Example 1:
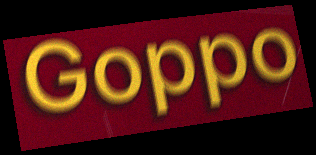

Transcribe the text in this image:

Goppo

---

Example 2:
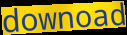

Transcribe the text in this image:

downoad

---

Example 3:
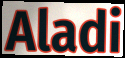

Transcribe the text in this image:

Aladi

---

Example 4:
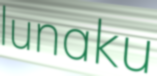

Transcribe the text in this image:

lunaku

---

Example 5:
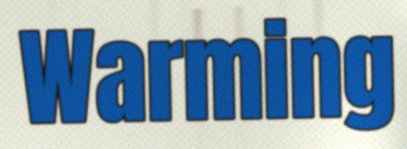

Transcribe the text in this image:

Warming